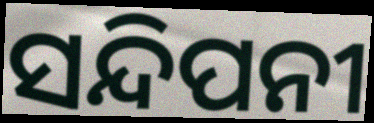
ସନ୍ଦିପନୀ